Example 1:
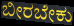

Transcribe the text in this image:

ಬೀರಬೇಕು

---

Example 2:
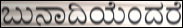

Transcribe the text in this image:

ಬುನಾದಿಯೆಂದರೆ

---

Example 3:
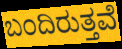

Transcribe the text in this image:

ಬಂದಿರುತ್ತವೆ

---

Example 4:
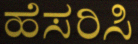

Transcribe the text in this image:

ಹೆಸರಿಸಿ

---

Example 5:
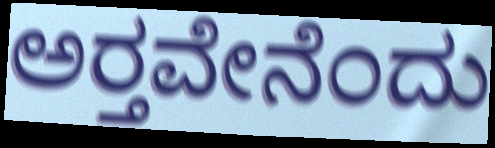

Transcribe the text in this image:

ಅರ‍್ತವೇನೆಂದು